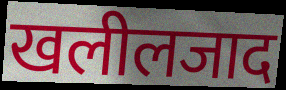
खलीलजाद